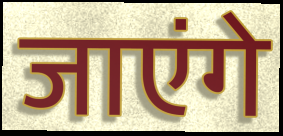
जाएंगे